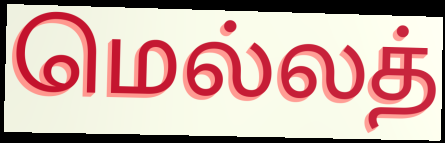
மெல்லத்